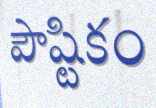
పౌష్టికం